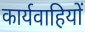
कार्यवाहियों